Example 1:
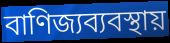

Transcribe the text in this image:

বাণিজ্যব্যবস্থায়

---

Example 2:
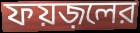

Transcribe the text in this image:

ফয়জ়লের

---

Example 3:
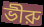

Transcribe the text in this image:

ভীরু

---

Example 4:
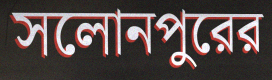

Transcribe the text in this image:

সলোনপুরের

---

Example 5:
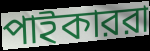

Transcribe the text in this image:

পাইকাররা